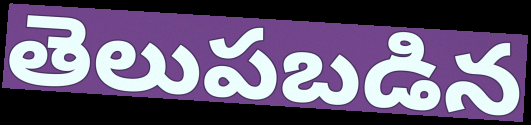
తెలుపబడిన